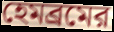
হেমব্রমের